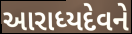
આરાધ્યદેવને